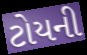
ટોયની